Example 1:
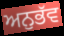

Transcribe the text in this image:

ਅਨੁਭੱਵ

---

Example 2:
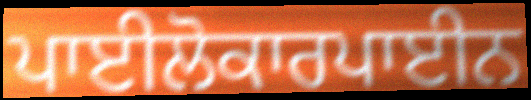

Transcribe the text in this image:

ਪਾਈਲੋਕਾਰਪਾਈਨ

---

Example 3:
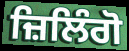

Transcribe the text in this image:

ਜ਼ਿਲਿੰਗੋ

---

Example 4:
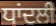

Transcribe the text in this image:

ਧਾਂਦਲੀ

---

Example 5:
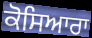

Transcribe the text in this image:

ਕੋਸਿਆਰਾ